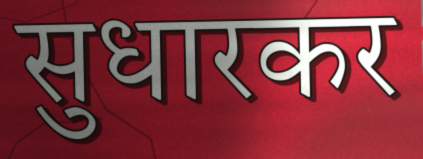
सुधारकर